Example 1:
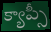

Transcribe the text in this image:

క్యాప్సీ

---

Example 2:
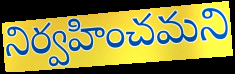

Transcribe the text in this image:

నిర్వహించమని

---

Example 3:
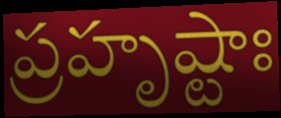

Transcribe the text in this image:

ప్రహృష్టాః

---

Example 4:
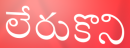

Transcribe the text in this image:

లేరుకొని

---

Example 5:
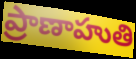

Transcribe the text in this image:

ప్రాణాహుతి